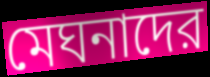
মেঘনাদের